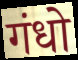
गंधो